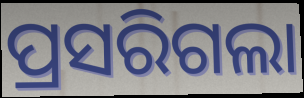
ପ୍ରସରିଗଲା